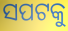
ସପଟକୁ